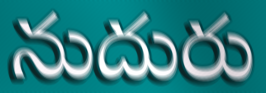
నుదురు